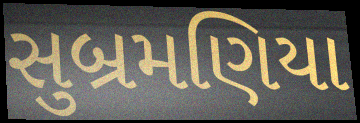
સુબ્રમણિયા